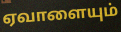
ஏவாளையும்